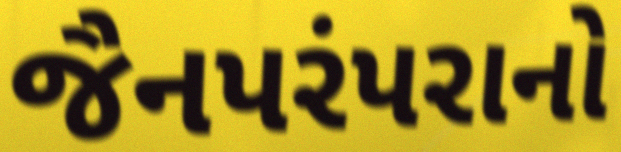
જૈનપરંપરાનો